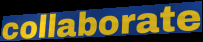
collaborate